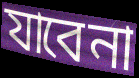
যাবেনা